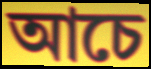
আচে